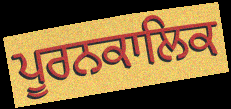
ਪੂਰਨਕਾਲਿਕ